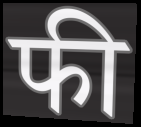
फी